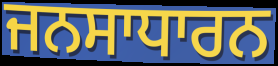
ਜਨਸਾਧਾਰਨ